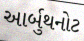
આર્બુથનોટ